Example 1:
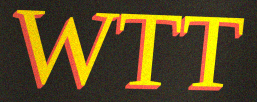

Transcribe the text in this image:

WTT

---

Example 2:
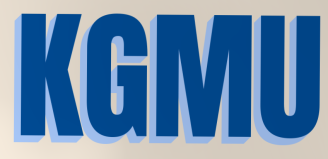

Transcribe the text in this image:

KGMU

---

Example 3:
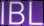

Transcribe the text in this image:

IBL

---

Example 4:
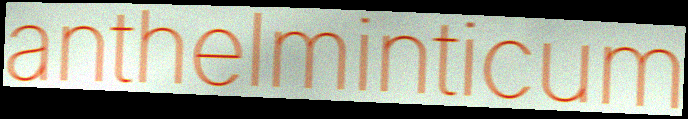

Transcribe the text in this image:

anthelminticum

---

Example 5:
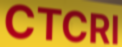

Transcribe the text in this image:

CTCRI